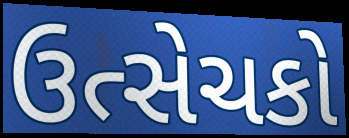
ઉત્સેચકો